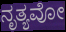
ನೃತ್ಯವೋ